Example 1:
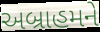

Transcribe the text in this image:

અબ્રાહમને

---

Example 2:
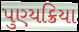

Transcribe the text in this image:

પુણ્યક્રિયા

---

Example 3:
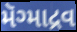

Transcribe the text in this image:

મૅગ્માદ્રવ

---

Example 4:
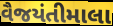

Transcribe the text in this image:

વૈજયંતીમાલા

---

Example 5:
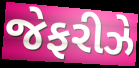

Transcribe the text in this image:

જેફરીઝે